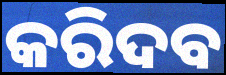
କରିଦବ